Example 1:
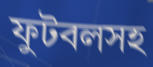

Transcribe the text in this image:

ফুটবলসহ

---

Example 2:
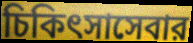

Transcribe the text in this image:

চিকিৎসাসেবার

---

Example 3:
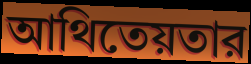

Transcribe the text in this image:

আথিতেয়তার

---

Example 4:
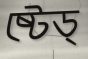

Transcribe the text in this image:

ষ্টেড্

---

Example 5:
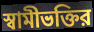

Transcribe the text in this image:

স্বামীভক্তির